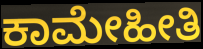
ಕಾಮೇಹೀತಿ